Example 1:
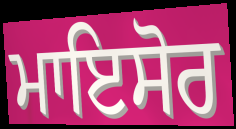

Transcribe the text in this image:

ਮਾਇਸੋਰ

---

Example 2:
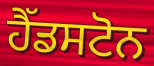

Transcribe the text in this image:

ਹੈੱਡਸਟੋਨ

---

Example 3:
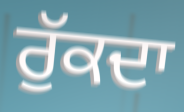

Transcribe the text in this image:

ਰੁੱਕਦਾ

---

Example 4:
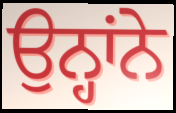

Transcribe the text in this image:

ਉਨ੍ਹਾਂਨੇ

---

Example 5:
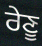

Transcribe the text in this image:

ਰੇਣੂ